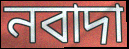
নবাদা